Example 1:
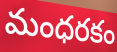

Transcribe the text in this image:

మంధరకం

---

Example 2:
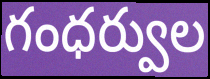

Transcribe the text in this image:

గంధర్వుల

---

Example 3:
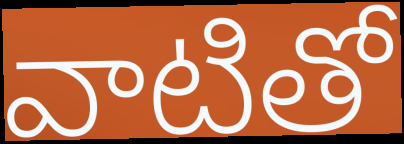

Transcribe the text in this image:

వాటితో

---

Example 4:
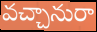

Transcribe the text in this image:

వచ్చానురా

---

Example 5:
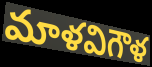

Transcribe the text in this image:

మాళవిగౌళ